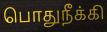
பொதுநீக்கி